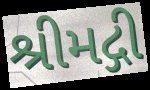
શ્રીમદ્ગી